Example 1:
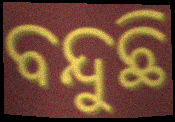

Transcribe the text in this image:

ବନ୍ଦୁଛି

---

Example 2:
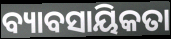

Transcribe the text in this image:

ବ୍ୟାବସାୟିକତା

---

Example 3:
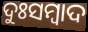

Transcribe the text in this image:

ଦୁଃସମ୍ୱାଦ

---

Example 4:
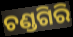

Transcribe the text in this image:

ଚଣ୍ଡଗିରି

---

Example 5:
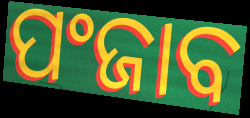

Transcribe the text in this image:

ପଂଜାବ